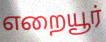
எறையூர்